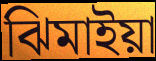
ঝিমাইয়া